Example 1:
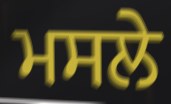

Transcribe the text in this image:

ਮਸਲੇ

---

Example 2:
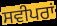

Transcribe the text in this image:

ਸਵੀਪਰਾਂ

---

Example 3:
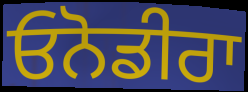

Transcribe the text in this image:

ਓਨੋਡੀਰਾ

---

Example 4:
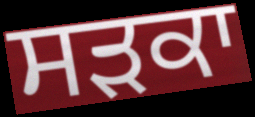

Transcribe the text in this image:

ਸੜਕਾ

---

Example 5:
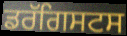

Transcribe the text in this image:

ਡਰੱਗਿਸਟਸ